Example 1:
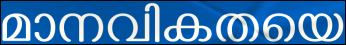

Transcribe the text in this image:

മാനവികതയെ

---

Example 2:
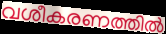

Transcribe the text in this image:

വശീകരണത്തിൽ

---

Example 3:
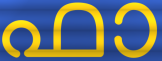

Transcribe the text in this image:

ഫാ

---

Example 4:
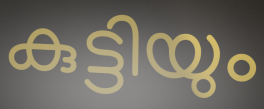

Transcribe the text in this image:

കുട്ടിയും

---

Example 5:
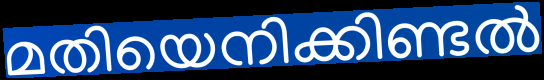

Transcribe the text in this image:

മതിയെനിക്കിണ്ടൽ